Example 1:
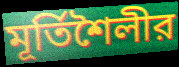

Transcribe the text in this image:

মূর্তিশৈলীর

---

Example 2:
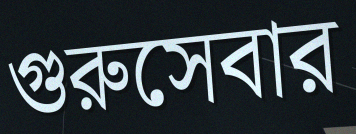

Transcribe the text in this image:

গুরুসেবার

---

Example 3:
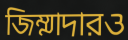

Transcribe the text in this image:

জিম্মাদারও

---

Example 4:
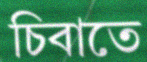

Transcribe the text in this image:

চিবাতে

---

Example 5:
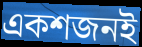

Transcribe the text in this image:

একশজনই